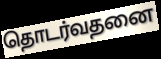
தொடர்வதனை